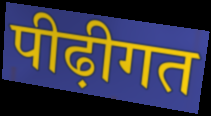
पीढ़ीगत